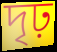
দৃঢ়